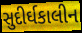
સુદીર્ઘકાલીન